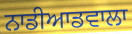
ਨਾਡੀਆਡਵਾਲਾ